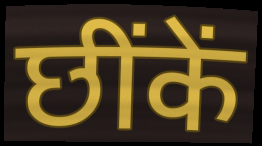
छींकें